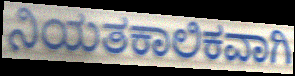
ನಿಯತಕಾಲಿಕವಾಗಿ